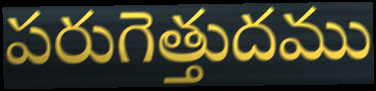
పరుగెత్తుదము